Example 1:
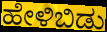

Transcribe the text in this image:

ಹೇಳಿಬಿಡು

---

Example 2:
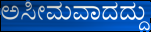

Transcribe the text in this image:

ಅಸೀಮವಾದದ್ದು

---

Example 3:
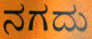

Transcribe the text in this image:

ನಗದು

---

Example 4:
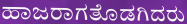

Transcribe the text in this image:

ಹಾಜರಾಗತೊಡಗಿದರು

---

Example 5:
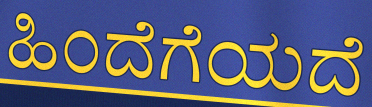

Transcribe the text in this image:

ಹಿಂದೆಗೆಯದೆ